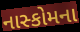
નાસ્કોમના